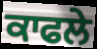
ਕਾਫਲੇ